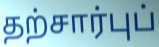
தற்சார்புப்